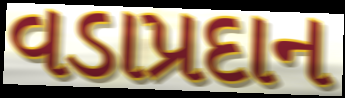
વડાપ્રદાન